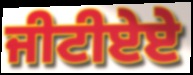
ਜੀਟੀਏਏ